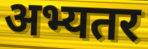
अभ्यतर